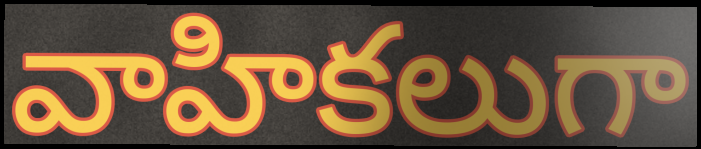
వాహికలుగా